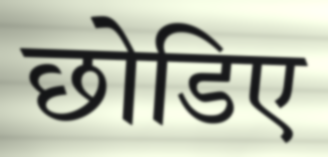
छोडिए